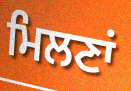
ਮਿਲਣਾਂ